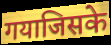
गयाजिसके